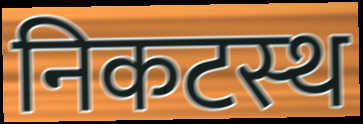
निकटस्‍थ